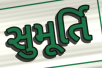
સુમૂર્તિ